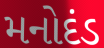
મનોદંડ